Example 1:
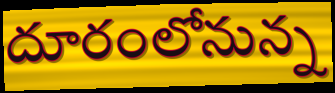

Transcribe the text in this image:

దూరంలోనున్న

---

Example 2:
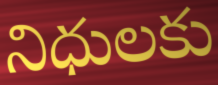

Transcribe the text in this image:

నిధులకు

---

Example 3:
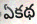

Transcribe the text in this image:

ఏకథ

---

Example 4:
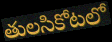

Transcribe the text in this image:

తులసికోటలో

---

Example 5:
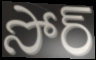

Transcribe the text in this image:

సోర్